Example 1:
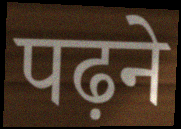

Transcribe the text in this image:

पढ़ने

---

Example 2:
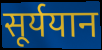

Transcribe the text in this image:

सूर्ययान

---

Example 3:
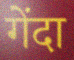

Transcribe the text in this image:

गेंदा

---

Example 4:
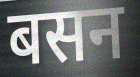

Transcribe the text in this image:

बसन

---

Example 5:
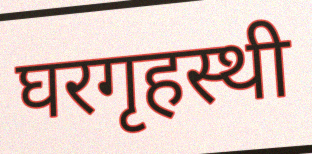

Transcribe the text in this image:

घरगृहस्थी